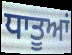
ਧਾਤੂਆਂ